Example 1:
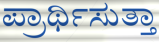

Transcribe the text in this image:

ಪ್ರಾರ್ಥಿಸುತ್ತಾ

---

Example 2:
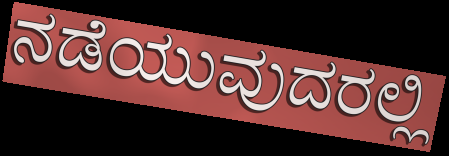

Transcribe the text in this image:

ನಡೆಯುವುದರಲ್ಲಿ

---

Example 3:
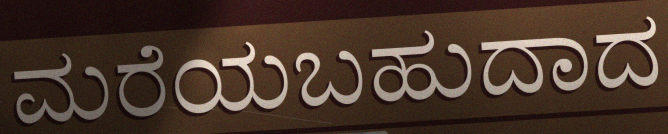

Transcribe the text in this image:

ಮರೆಯಬಹುದಾದ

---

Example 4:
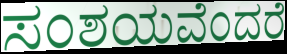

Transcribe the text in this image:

ಸಂಶಯವೆಂದರೆ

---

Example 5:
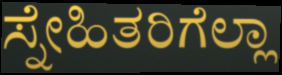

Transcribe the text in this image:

ಸ್ನೇಹಿತರಿಗೆಲ್ಲಾ